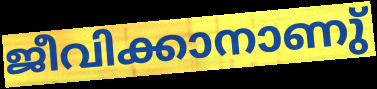
ജീവിക്കാനാണു്